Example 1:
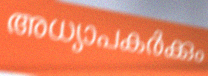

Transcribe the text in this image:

അധ്യാപകർക്കും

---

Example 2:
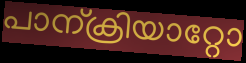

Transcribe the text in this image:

പാന്ക്രിയാറ്റോ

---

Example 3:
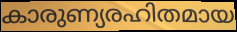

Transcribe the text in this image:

കാരുണ്യരഹിതമായ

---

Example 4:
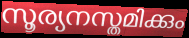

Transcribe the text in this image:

സൂര്യനസ്തമിക്കും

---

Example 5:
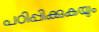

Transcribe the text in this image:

പഠിപ്പിക്കുകയും